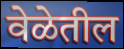
वेळेतील